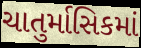
ચાતુર્માસિકમાં